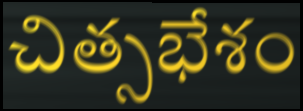
చిత్సభేశం